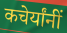
कचेर्यांनीं